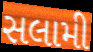
સલામી